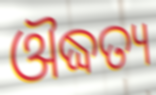
ଔଦ୍ଧତ୍ୟ